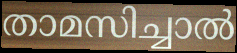
താമസിച്ചാൽ